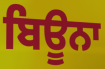
ਬਿਊਨਾ